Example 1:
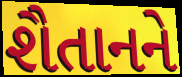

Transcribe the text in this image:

શૈતાનને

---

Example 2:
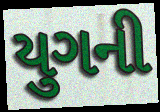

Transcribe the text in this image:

યુગની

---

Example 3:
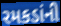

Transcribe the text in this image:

રમકડાંની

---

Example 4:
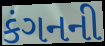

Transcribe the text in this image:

કંગનની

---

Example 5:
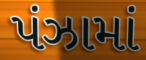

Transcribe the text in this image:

પંઝામાં